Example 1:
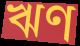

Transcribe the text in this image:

ঋণ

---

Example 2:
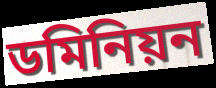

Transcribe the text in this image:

ডমিনিয়ন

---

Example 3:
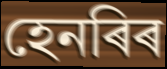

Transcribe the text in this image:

হেনৰিৰ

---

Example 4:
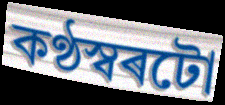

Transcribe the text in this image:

কণ্ঠস্বৰটো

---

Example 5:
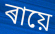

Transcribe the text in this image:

ৰায়ে